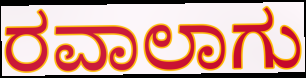
ರವಾಲಾಗು